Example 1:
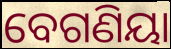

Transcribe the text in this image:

ବେଗଣିୟା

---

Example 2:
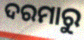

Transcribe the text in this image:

ଦରମାରୁ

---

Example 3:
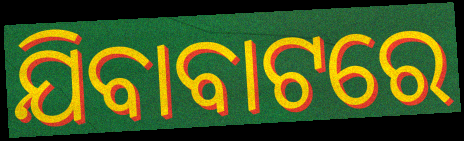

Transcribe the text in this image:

ଯିବାବାଟରେ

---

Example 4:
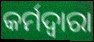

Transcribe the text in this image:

କର୍ମଦ୍ୱାରା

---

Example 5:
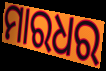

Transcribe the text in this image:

ମାରଧର